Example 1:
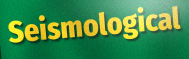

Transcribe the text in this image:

Seismological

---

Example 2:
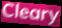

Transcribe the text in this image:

Cleary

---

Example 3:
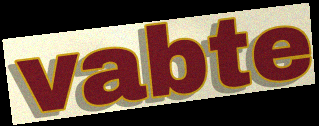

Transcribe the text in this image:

vabte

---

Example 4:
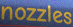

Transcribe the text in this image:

nozzles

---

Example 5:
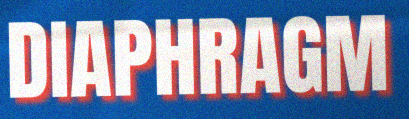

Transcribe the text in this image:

DIAPHRAGM